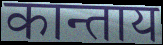
कान्ताय